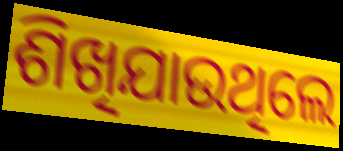
ଶିଖିଯାଉଥିଲେ